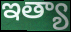
ఇత్యా